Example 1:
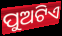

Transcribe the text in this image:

ପୁଅଟିଏ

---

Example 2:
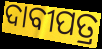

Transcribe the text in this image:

ଦାବୀପତ୍ର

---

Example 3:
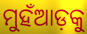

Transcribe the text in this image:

ମୁହଁଆଡ଼କୁ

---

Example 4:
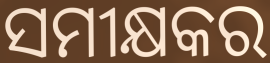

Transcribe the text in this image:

ସମୀକ୍ଷକର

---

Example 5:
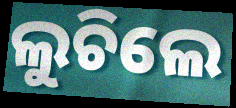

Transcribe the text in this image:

ଲୁଚିଲେ